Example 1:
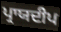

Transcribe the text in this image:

ਪ੍ਰਾਯਦੀਪ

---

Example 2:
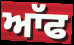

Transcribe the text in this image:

ਆੱਫ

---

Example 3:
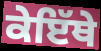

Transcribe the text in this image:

ਕੇਇੱਥੇ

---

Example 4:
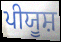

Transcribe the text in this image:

ਪੀਯੂਸ਼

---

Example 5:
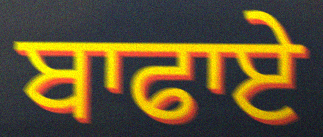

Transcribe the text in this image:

ਬਾਫਾਏ